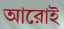
আরোই